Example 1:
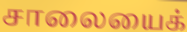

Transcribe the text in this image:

சாலையைக்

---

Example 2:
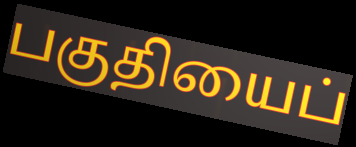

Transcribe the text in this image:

பகுதியைப்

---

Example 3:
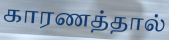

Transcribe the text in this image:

காரணத்தால்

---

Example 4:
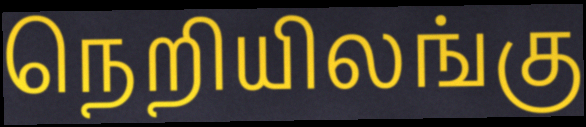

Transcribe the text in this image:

நெறியிலங்கு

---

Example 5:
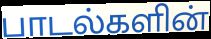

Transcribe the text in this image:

பாடல்களின்